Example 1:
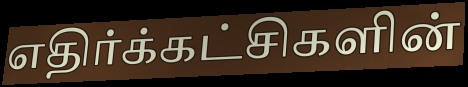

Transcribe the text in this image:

எதிர்க்கட்சிகளின்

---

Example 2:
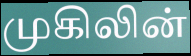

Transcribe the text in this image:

முகிலின்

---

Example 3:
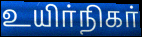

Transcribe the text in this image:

உயிர்நிகர்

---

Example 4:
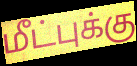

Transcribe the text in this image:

மீட்புக்கு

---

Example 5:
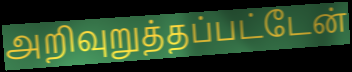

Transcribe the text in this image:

அறிவுறுத்தப்பட்டேன்